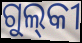
ଗୁଲ୍‌କୀ